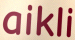
aikli